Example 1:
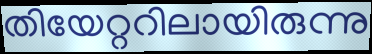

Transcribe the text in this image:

തിയേറ്ററിലായിരുന്നു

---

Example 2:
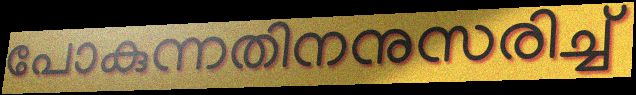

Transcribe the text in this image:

പോകുന്നതിനനുസരിച്ച്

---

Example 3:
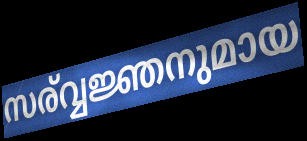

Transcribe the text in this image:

സര്വ്വജ്ഞനുമായ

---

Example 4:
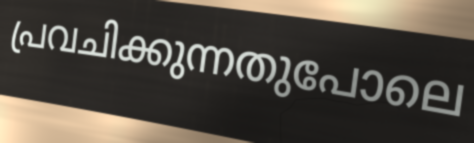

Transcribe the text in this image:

പ്രവചിക്കുന്നതുപോലെ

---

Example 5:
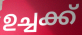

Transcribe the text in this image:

ഉച്ചക്ക്